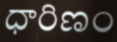
ధారిణం